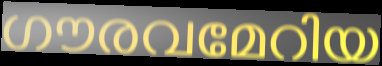
ഗൗരവമേറിയ